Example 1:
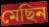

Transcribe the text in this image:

মেছিন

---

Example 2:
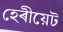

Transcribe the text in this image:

হেৰীয়েট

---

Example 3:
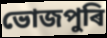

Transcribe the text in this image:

ভোজপুৰি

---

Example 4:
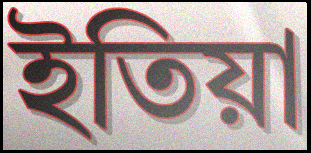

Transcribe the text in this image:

ইতিয়া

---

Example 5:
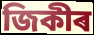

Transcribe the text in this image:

জিকীৰ